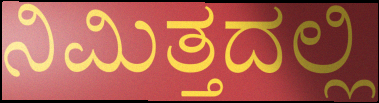
ನಿಮಿತ್ತದಲ್ಲಿ